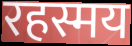
रहस्मय